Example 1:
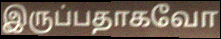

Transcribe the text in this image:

இருப்பதாகவோ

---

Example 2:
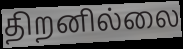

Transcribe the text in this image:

திறனில்லை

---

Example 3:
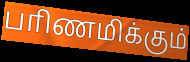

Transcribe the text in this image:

பரிணமிக்கும்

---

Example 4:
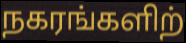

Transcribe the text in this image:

நகரங்களிற்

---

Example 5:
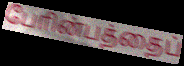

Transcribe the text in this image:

பேரின்பத்தைப்